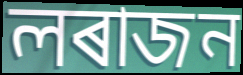
লৰাজন